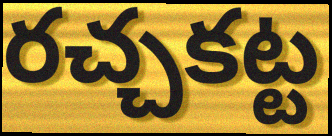
రచ్చకట్ట